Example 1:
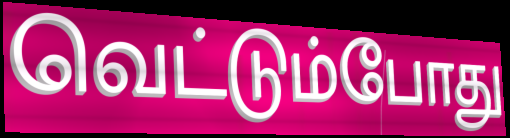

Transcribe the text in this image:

வெட்டும்போது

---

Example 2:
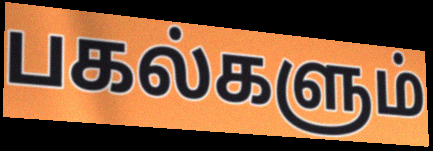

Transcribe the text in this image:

பகல்களும்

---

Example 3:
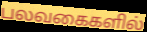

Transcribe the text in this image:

பலவகைகளில்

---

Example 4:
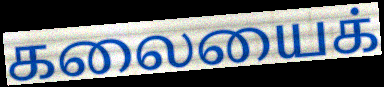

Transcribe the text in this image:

கலையைக்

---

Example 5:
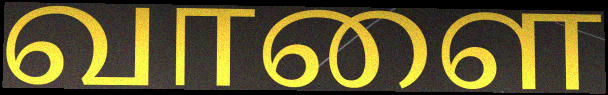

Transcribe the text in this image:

வாளை